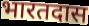
भारतदास